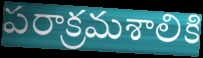
పరాక్రమశాలికి